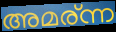
അമര്ന്ന